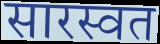
सारस्वत